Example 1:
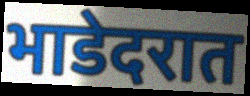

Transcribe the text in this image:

भाडेदरात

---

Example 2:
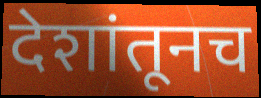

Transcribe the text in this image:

देशांतूनच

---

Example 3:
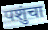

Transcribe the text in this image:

पशुंचा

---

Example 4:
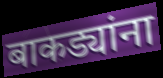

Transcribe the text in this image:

बाकड्यांना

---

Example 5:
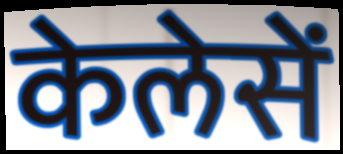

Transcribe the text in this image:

केलेसें